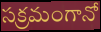
సక్రమంగానో